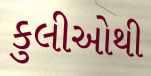
કુલીઓથી